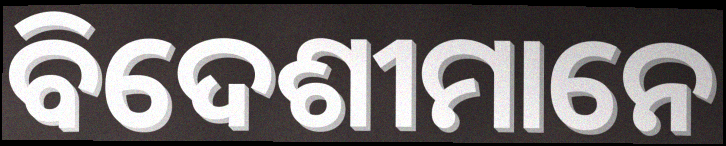
ବିଦେଶୀମାନେ